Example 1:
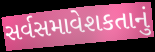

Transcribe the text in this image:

સર્વસમાવેશકતાનું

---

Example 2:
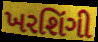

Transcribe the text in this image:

ખરશિંગી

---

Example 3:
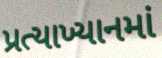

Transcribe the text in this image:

પ્રત્યાખ્યાનમાં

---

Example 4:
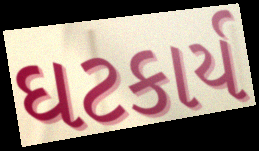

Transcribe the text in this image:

ઘટકાર્ય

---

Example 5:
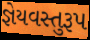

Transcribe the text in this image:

જ્ઞેયવસ્તુરૂપ